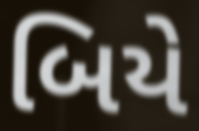
બિયે